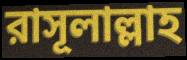
রাসূলাল্লাহ